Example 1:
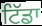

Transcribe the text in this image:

ਟਿੱਡਾ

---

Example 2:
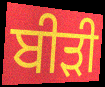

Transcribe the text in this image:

ਬੀਡ਼ੀ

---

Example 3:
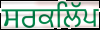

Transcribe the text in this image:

ਸਰਕਲਿੱਪ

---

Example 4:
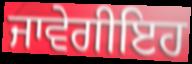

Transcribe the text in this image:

ਜਾਵੇਗੀਇਹ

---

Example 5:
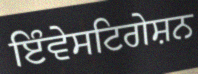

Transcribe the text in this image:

ਇੰਵੇਸਟਿਗੇਸ਼ਨ